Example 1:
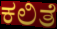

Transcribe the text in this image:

ಕಲಿತೆ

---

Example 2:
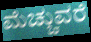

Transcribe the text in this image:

ಮೆಚ್ಚುವರೆ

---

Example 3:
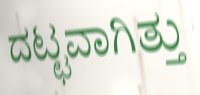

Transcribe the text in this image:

ದಟ್ಟವಾಗಿತ್ತು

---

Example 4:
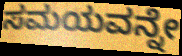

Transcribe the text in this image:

ಸಮಯವನ್ನೇ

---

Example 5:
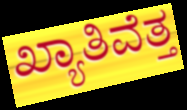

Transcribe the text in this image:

ಖ್ಯಾತಿವೆತ್ತ